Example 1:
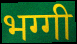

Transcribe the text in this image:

भग्गी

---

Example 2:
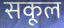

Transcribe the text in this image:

सकूल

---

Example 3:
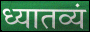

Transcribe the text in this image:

ध्यातव्यं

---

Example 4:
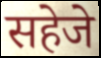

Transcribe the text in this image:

सहेजे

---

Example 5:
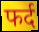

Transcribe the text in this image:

फर्द